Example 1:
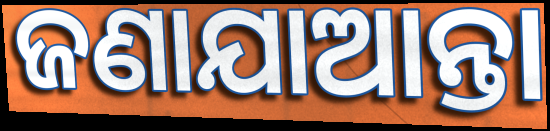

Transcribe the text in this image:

ଜଣାଯାଆନ୍ତା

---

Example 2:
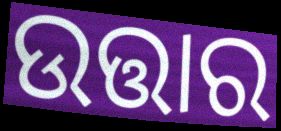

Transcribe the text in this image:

ଉତ୍ତାର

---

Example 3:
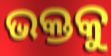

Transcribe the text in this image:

ଭକ୍ତକୁ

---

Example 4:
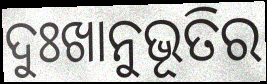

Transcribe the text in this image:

ଦୁଃଖାନୁଭୂତିର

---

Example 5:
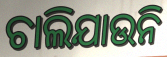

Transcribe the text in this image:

ଚାଲିଯାଉନି